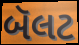
બૅલટ